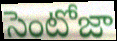
సెంటోజా